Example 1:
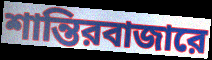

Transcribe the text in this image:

শান্তিরবাজারে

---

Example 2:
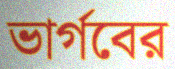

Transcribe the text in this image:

ভার্গবের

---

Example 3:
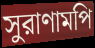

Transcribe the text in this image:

সুরাণামপি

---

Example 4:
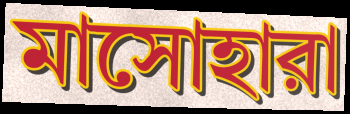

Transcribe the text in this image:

মাসোহারা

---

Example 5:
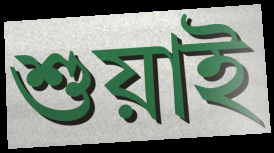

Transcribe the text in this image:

শুয়াই